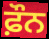
ਫ਼ੌਨ